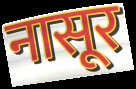
नासूर